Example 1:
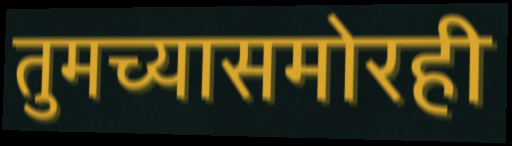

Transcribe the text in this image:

तुमच्यासमोरही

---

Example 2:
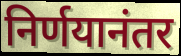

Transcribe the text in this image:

निर्णयानंतर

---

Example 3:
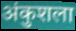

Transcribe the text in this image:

अंकुशला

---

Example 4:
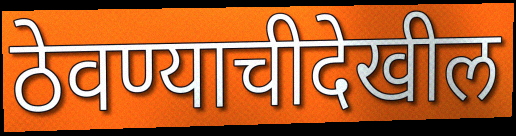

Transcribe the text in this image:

ठेवण्याचीदेखील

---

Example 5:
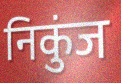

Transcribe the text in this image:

निकुंज